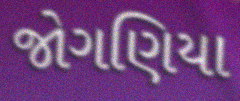
જોગણિયા